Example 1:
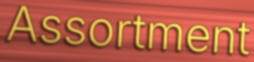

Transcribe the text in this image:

Assortment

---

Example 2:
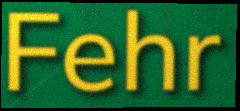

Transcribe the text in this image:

Fehr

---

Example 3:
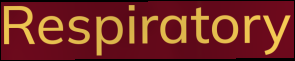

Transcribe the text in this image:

Respiratory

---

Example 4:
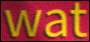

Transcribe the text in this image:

wat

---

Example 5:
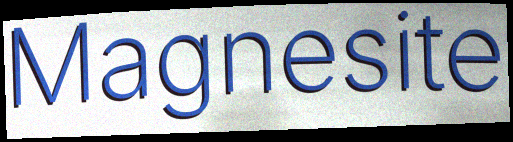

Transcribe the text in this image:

Magnesite